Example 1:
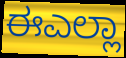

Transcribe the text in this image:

ಈಎಲ್ಲಾ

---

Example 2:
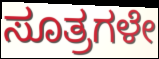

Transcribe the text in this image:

ಸೂತ್ರಗಳೇ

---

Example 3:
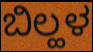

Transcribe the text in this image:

ಬಿಲ್ಹಳ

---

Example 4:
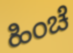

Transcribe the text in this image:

ಹಿಂಚೆ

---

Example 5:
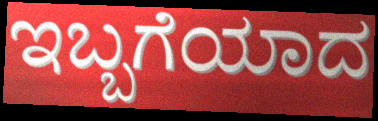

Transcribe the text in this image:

ಇಬ್ಬಗೆಯಾದ